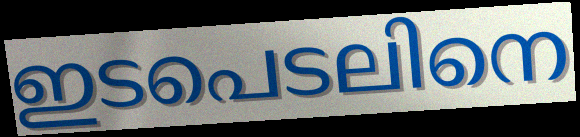
ഇടപെടലിനെ